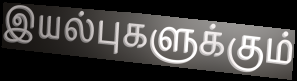
இயல்புகளுக்கும்